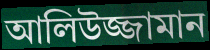
আলিউজ্জামান